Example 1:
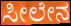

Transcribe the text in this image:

ಸೀಲೇನ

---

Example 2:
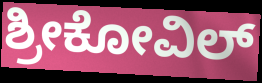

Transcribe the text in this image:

ಶ್ರೀಕೋವಿಲ್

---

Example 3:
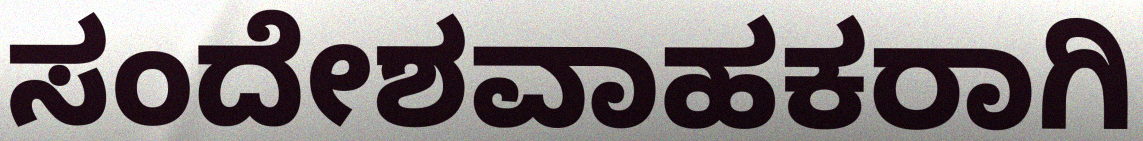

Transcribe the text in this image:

ಸಂದೇಶವಾಹಕರಾಗಿ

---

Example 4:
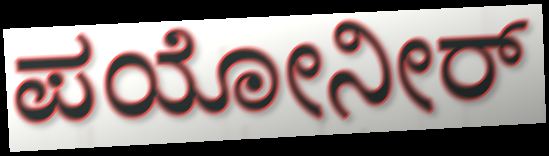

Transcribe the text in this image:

ಪಯೋನೀರ್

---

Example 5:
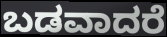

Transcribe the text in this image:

ಬಡವಾದರೆ